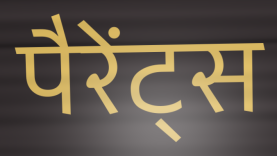
पैरेंट्स